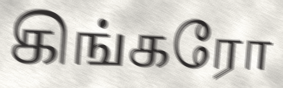
கிங்கரோ